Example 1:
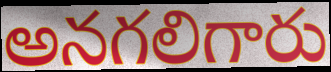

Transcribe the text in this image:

అనగలిగారు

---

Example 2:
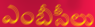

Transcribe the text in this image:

ఎంబీసీలు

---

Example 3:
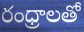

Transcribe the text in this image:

రంధ్రాలతో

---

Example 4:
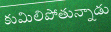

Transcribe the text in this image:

కుమిలిపోతున్నాడు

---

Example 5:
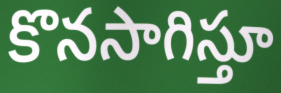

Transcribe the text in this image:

కొనసాగిస్తూ